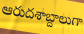
ఆరుదశాబ్దాలుగా